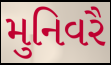
મુનિવરૈ